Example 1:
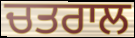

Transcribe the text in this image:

ਚਤਰਾਲ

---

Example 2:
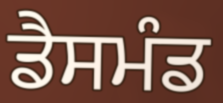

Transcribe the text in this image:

ਡੈਸਮੰਡ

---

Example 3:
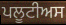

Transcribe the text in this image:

ਪਲੂਟੀਅਸ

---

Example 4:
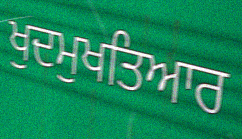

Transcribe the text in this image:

ਖੁਦਮੁਖਤਿਆਰ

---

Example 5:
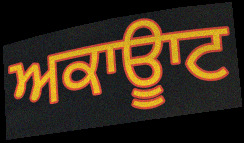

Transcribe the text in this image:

ਅਕਾਊਾਟ